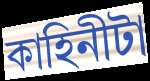
কাহিনীটা